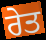
ਰੇਤ